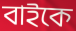
বাইকে